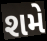
શમે